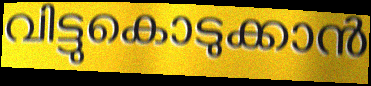
വിട്ടുകൊടുക്കാൻ